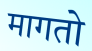
मागतो